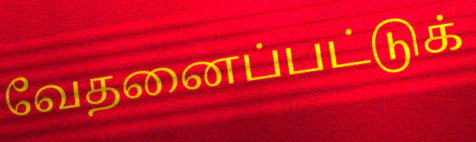
வேதனைப்பட்டுக்